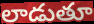
లాడుతూ